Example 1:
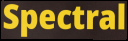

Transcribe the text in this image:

Spectral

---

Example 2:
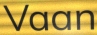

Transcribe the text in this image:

Vaan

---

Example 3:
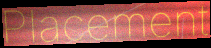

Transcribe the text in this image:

Placement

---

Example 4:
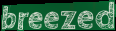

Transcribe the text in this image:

breezed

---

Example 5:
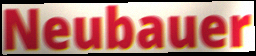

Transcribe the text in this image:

Neubauer